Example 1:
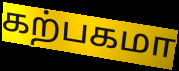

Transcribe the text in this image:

கற்பகமா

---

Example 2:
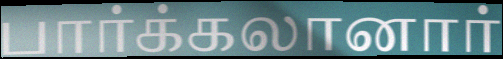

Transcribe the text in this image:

பார்க்கலானார்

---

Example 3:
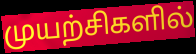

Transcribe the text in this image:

முயற்சிகளில்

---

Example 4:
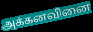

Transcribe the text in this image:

அக்கனவினை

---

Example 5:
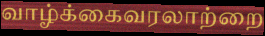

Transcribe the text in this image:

வாழ்க்கைவரலாற்றை